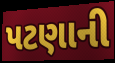
પટણાની